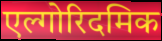
एल्गोरिदमिक